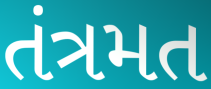
તંત્રમત